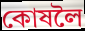
কোষলৈ